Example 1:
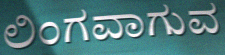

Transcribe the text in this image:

ಲಿಂಗವಾಗುವ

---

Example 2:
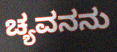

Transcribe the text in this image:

ಚ್ಯವನನು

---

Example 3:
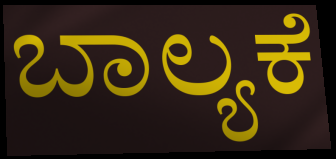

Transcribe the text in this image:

ಬಾಲ್ಯಕೆ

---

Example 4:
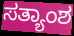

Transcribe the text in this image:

ಸತ್ಯಾಂಶ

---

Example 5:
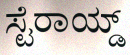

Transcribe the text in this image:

ಸ್ಟೆರಾಯ್ಡ್